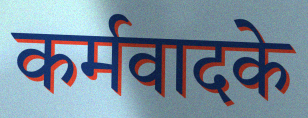
कर्मवादके